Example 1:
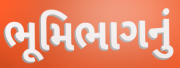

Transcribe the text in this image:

ભૂમિભાગનું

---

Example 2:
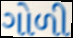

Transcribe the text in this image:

ગોળી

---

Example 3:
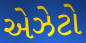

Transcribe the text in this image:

એઝેટો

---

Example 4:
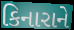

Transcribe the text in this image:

કિનારાને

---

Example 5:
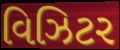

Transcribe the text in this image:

વિઝિટર